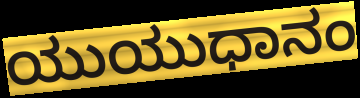
ಯುಯುಧಾನಂ